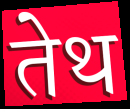
तेथ